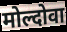
मोल्दोवा